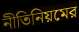
নীতিনিয়মের